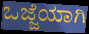
ಒಜ್ಜೆಯಾಗಿ